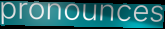
pronounces